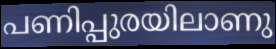
പണിപ്പുരയിലാണു